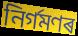
নিৰ্গমণৰ